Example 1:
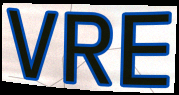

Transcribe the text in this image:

VRE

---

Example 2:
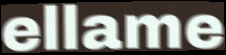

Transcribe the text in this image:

ellame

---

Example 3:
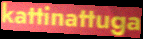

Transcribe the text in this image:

kattinattuga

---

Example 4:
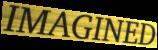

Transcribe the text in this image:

IMAGINED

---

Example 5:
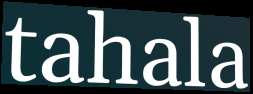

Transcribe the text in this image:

tahala